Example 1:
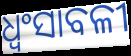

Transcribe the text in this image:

ଧ୍ୱଂସାବଳୀ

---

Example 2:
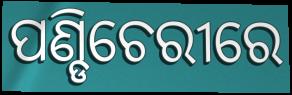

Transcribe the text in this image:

ପଣ୍ଡିଚେରୀରେ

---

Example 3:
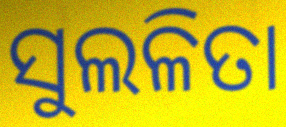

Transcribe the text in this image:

ସୁଲଳିତା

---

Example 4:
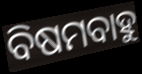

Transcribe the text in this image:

ବିଷମବାହୁ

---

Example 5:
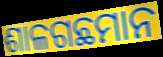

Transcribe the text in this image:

ଶାଳଗଛମାନ